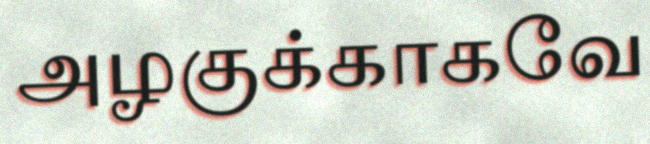
அழகுக்காகவே